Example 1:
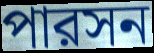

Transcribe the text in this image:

পারসন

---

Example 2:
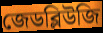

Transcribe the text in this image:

জেডব্লিউজি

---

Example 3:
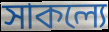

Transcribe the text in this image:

সাকল্যে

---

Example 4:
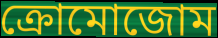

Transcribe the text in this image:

ক্রোমোজোম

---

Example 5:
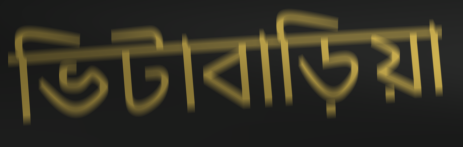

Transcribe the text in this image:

ভিটাবাড়িয়া